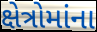
ક્ષેત્રોમાંના